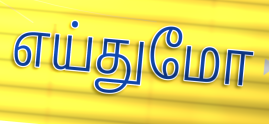
எய்துமோ